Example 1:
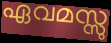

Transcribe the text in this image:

ഏവമസ്സു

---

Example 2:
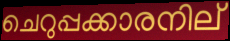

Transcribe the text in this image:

ചെറുപ്പക്കാരനില്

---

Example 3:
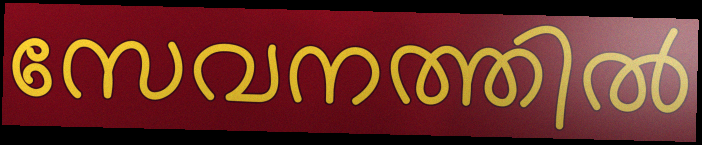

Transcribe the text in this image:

സേവനത്തിൽ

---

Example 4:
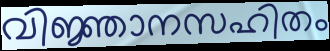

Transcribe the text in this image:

വിജ്ഞാനസഹിതം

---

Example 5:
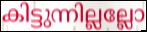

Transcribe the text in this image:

കിട്ടുന്നില്ലല്ലോ